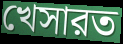
খেসারত